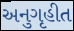
અનુગૃહીત